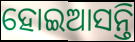
ହୋଇଆସନ୍ତି